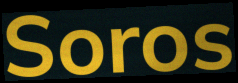
Soros